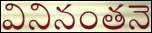
వినినంతనె